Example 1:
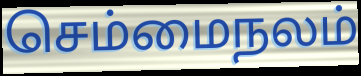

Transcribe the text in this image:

செம்மைநலம்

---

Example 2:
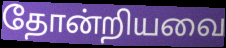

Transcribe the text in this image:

தோன்றியவை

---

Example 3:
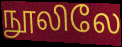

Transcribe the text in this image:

நூலிலே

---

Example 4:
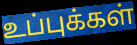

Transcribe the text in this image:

உப்புக்கள்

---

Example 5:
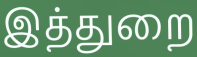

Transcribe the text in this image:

இத்துறை